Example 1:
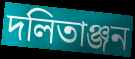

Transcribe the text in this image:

দলিতাঞ্জন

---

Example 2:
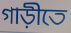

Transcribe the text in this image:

গাড়ীতে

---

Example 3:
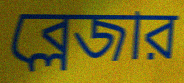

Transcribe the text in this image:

ব্লেজার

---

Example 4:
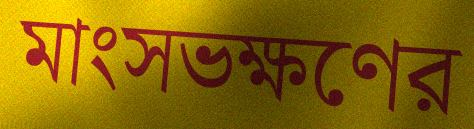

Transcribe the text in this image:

মাংসভক্ষণের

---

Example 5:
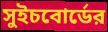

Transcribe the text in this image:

সুইচবোর্ডের